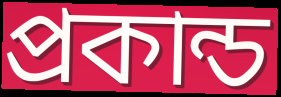
প্রকান্ড